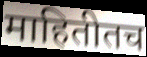
माहितीतच